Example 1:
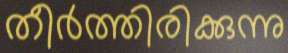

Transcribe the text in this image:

തീർത്തിരിക്കുന്നു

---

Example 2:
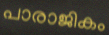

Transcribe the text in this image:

പാരാജികം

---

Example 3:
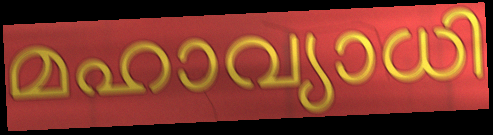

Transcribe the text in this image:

മഹാവ്യാധി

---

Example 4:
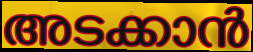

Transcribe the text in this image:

അടക്കാൻ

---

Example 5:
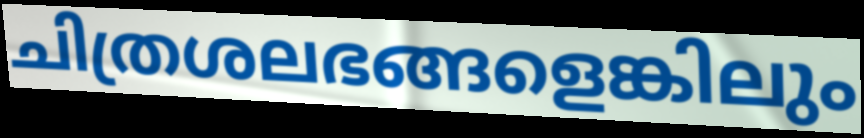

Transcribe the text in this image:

ചിത്രശലഭങ്ങളെങ്കിലും